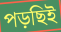
পড়ছিই